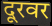
दूरवर